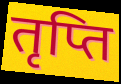
तृप्ति